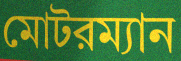
মোটরম্যান